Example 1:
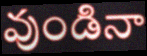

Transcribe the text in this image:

వుండినా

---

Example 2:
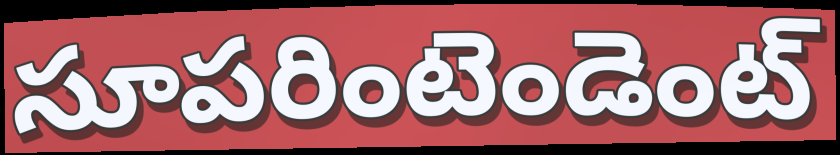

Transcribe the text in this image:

సూపరింటెండెంట్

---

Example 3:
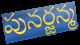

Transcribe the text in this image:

పునర్జన్మ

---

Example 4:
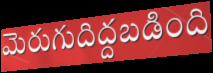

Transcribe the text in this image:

మెరుగుదిద్దబడింది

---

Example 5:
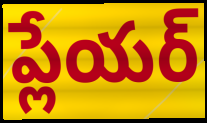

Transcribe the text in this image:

ప్లేయర్